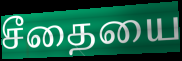
சீதையை